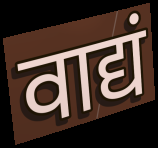
वाद्यं